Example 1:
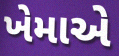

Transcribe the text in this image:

ખેમાએ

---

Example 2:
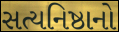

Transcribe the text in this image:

સત્યનિષ્ઠાનો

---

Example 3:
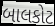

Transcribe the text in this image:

બાલકોટ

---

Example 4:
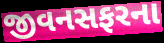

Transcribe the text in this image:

જીવનસફરના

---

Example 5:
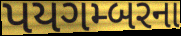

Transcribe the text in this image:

પયગમ્બરના